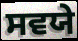
ਸਵਯੇ